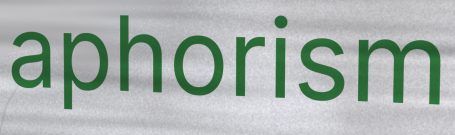
aphorism